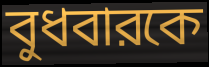
বুধবারকে